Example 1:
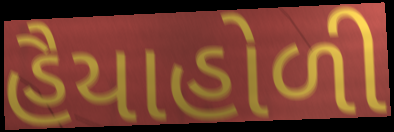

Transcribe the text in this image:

હૈયાહોળી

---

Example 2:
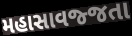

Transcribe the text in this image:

મહાસાવજ્જતા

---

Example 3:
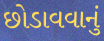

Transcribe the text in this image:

છોડાવવાનું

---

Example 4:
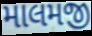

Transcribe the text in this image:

માલમજી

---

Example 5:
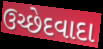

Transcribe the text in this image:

ઉચ્છેદવાદા